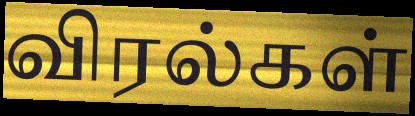
விரல்கள்